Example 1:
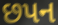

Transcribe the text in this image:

છપન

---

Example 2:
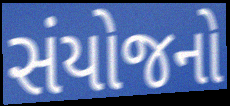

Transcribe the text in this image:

સંયોજનો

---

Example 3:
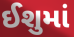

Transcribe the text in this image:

ઈશુમાં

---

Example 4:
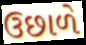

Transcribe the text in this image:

ઉછાળે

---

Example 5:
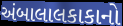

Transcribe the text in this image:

અંબાલાલકાકાનો